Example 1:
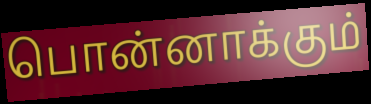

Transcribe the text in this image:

பொன்னாக்கும்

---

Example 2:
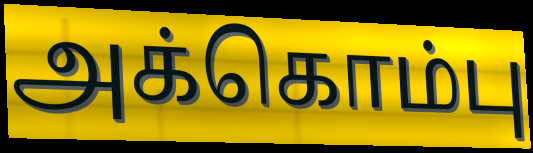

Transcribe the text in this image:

அக்கொம்பு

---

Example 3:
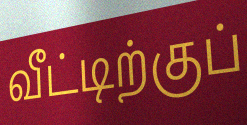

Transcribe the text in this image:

வீட்டிற்குப்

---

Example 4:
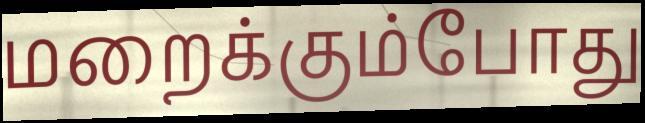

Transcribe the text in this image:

மறைக்கும்போது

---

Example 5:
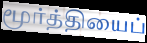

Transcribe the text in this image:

மூர்த்தியைப்